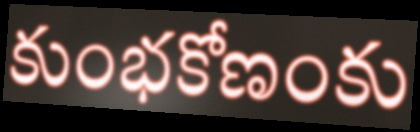
కుంభకోణంకు